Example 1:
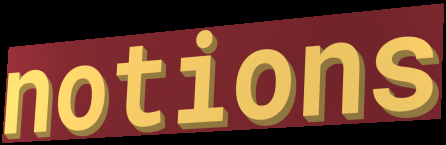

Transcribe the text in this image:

notions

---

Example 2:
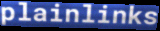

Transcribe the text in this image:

plainlinks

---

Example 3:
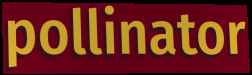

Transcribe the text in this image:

pollinator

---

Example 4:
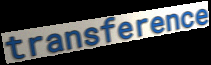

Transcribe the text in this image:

transference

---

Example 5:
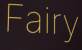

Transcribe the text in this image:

Fairy